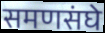
समणसंघे